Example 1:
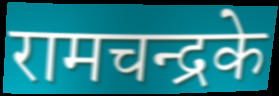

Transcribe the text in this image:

रामचन्द्रके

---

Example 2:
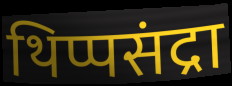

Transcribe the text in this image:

थिप्पसंद्रा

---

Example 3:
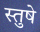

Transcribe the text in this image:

स्तुषे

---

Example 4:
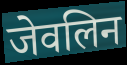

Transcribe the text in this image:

जेवलिन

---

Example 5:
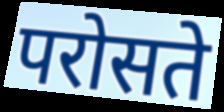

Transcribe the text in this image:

परोसते